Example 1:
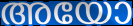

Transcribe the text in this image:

അയോ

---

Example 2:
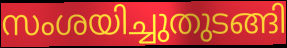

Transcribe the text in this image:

സംശയിച്ചുതുടങ്ങി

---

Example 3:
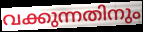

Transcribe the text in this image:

വക്കുന്നതിനും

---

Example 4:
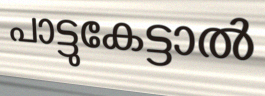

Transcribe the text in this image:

പാട്ടുകേട്ടാൽ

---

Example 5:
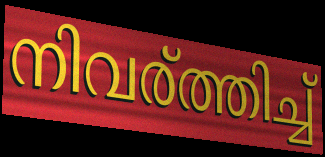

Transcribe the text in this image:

നിവര്ത്തിച്ച്